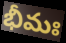
భీమః